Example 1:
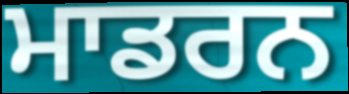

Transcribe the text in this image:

ਮਾਡਰਨ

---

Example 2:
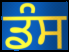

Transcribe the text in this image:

ਡੰਸ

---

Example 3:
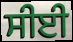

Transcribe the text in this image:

ਸੀਈ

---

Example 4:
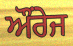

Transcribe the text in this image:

ਔਂਰੇਜ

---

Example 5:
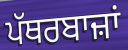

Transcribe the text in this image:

ਪੱਥਰਬਾਜ਼ਾਂ